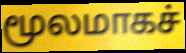
மூலமாகச்